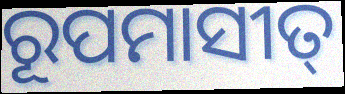
ରୂପମାସୀତ୍